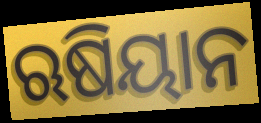
ଋଷିୟାନ